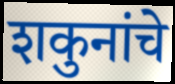
शकुनांचे